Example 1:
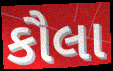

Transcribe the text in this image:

કૌલા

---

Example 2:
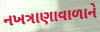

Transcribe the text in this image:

નખત્રાણાવાળાને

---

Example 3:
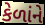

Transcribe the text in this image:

કેળાંને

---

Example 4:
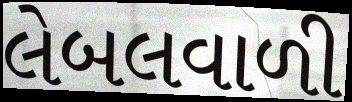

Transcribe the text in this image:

લેબલવાળી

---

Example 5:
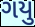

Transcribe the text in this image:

ગયુ